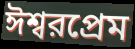
ঈশ্বরপ্রেম